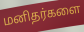
மனிதர்களை